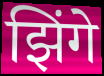
झिंगे